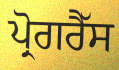
ਪ੍ਰੋਗਰੈੱਸ